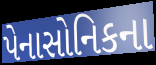
પેનાસોનિકના